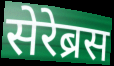
सेरेब्रस